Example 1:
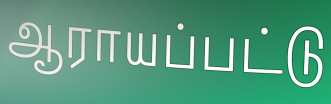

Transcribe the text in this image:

ஆராயப்பட்டு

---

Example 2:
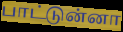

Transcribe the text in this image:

பாட்டுன்னா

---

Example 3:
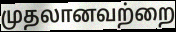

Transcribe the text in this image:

முதலானவற்றை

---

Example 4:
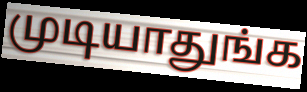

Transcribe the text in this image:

முடியாதுங்க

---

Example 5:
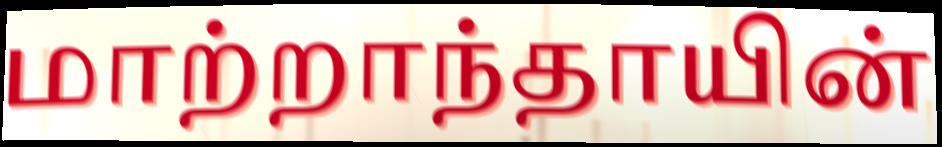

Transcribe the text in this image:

மாற்றாந்தாயின்